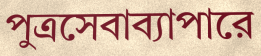
পুত্রসেবাব্যাপারে